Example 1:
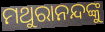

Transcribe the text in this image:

ମଥୁରାନନ୍ଦଙ୍କୁ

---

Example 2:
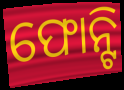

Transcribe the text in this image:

ଫୋନ୍ଟି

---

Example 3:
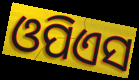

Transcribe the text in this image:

ଓପିଏସ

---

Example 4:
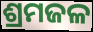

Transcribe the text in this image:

ଶ୍ରମଜଳ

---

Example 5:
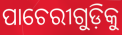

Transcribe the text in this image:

ପାଚେରୀଗୁଡ଼ିକୁ